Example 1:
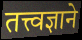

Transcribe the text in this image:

तत्त्वज्ञाने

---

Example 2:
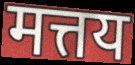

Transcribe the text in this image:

मत्तय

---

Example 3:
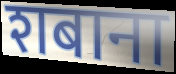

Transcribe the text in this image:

शबाना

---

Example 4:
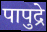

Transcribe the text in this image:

पापुद्रे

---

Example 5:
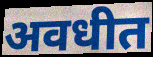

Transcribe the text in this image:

अवधीत